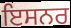
ਇਸਨਰ